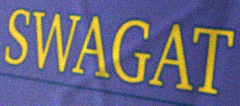
SWAGAT